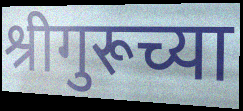
श्रीगुरूच्या